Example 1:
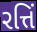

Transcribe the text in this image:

રત્તિં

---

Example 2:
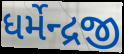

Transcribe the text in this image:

ધર્મેન્દ્રજી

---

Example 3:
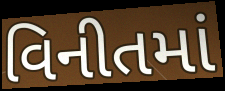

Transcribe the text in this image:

વિનીતમાં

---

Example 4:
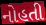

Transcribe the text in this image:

નોહતી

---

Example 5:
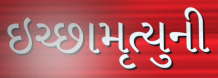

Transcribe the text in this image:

ઇચ્છામૃત્યુની